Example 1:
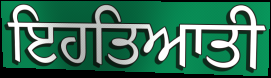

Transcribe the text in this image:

ਇਹਤਿਆਤੀ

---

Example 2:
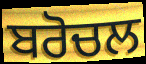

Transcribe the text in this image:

ਬਰੋਚਲ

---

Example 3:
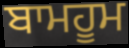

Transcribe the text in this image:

ਬਾਮਹੂਮ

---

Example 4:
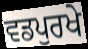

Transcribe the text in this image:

ਵਡਪੁਰਖੇ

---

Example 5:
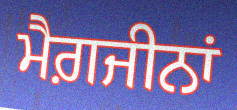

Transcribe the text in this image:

ਮੈਗ਼ਜੀਨਾਂ